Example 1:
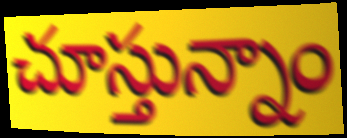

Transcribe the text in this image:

చూస్తున్నాం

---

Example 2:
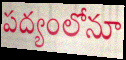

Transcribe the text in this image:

పద్యంలోనూ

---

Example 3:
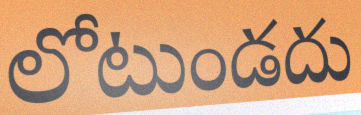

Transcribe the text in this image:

లోటుండదు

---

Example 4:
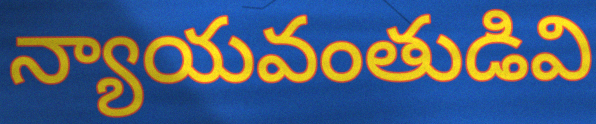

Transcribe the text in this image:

న్యాయవంతుడివి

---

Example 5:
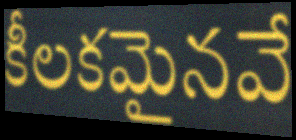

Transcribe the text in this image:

కీలకమైనవే